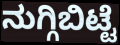
ನುಗ್ಗಿಬಿಟ್ಟೆ